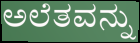
ಅಲೆತವನ್ನು